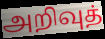
அறிவுத்